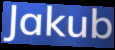
Jakub